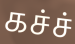
கச்ச்